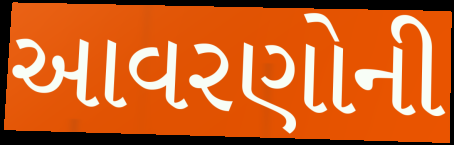
આવરણોની